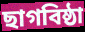
ছাগবিষ্ঠা